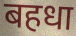
बहधा